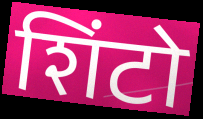
शिंटो